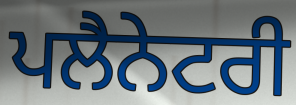
ਪਲੈਨੇਟਰੀ